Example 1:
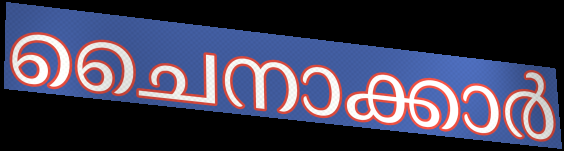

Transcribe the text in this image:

ചൈനാക്കാർ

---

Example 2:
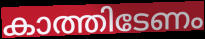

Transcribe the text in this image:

കാത്തിടേണം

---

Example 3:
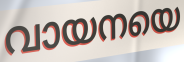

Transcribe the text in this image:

വായനയെ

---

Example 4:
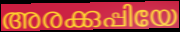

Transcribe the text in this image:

അരക്കുപ്പിയേ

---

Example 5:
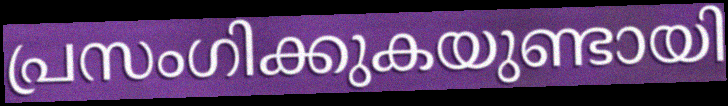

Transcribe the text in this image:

പ്രസംഗിക്കുകയുണ്ടായി